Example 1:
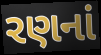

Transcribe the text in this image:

રણનાં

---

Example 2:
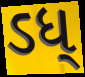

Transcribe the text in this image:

ઽધ્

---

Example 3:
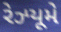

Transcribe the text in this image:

રેઝ્યૂમે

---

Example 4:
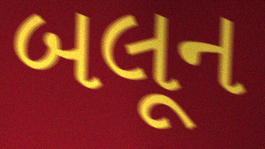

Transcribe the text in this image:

બલૂન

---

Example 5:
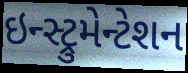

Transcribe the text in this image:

ઇન્સ્ટ્રુમેન્ટેશન